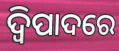
ଦ୍ୱିପାଦରେ